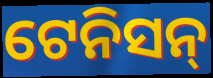
ଟେନିସନ୍